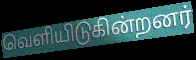
வெளியிடுகின்றனர்